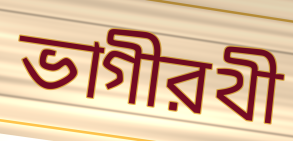
ভাগীরথী